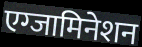
एग्‍जामिनेशन